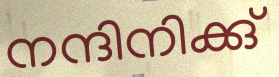
നന്ദിനിക്കു്